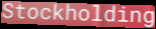
Stockholding